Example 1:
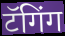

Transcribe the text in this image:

टॅगिंग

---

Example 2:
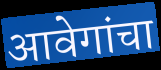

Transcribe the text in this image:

आवेगांचा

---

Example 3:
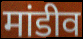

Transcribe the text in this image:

मांडीव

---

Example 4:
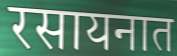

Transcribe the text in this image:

रसायनात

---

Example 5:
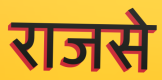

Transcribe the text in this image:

राजसे